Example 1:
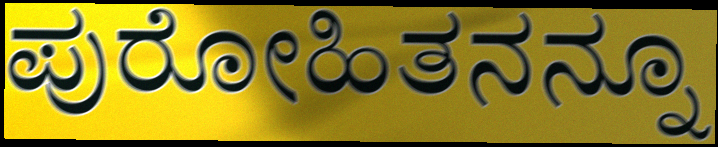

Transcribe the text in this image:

ಪುರೋಹಿತನನ್ನೂ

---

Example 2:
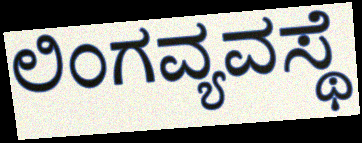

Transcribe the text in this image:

ಲಿಂಗವ್ಯವಸ್ಥೆ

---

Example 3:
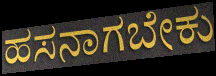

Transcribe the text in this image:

ಹಸನಾಗಬೇಕು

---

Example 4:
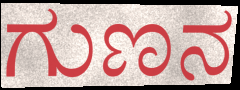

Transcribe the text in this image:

ಗುಣನ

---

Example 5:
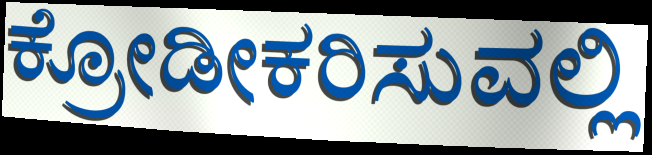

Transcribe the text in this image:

ಕ್ರೋಡೀಕರಿಸುವಲ್ಲಿ